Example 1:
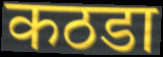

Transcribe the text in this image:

कठडा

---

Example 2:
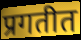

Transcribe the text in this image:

प्रगतीत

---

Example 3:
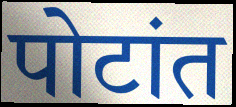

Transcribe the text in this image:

पोटांत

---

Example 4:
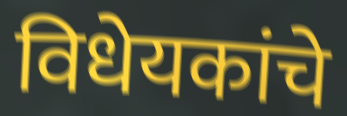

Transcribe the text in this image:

विधेयकांचे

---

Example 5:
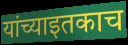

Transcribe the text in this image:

यांच्याइतकाच